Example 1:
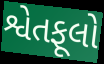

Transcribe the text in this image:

શ્વેતફૂલો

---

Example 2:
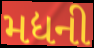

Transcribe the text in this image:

મદ્યની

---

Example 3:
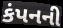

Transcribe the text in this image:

કંપનની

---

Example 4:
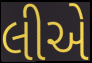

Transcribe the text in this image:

લીએ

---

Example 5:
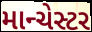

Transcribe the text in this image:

માન્ચેસ્ટર